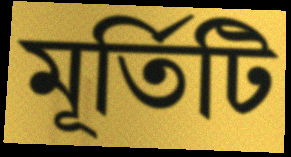
মূর্তিটি